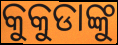
କୁକୁଡାଙ୍କୁ